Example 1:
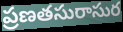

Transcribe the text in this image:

ప్రణతసురాసుర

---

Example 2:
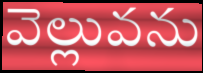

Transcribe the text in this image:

వెల్లువను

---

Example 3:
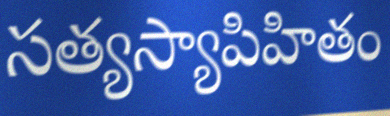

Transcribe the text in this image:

సత్యస్యాపిహితం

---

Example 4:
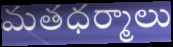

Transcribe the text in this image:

మతధర్మాలు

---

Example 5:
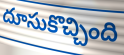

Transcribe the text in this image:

దూసుకొచ్చింది